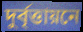
দুর্বৃত্তায়নে